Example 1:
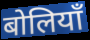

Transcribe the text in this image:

बोलियाँ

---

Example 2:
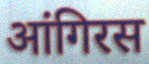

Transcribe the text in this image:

आंगिरस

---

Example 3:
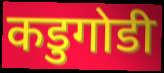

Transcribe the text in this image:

कडुगोडी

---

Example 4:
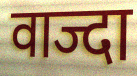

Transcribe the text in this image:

वाज्दा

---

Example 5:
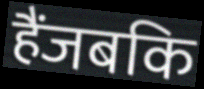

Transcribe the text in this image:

हैंजबकि